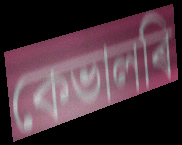
কেভালৰি